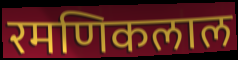
रमणिकलाल